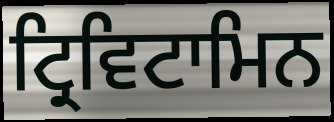
ਟ੍ਰਿਵਿਟਾਮਿਨ